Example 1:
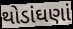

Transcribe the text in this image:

થોડાંઘણાં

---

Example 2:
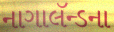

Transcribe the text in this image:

નાગાલૅન્ડના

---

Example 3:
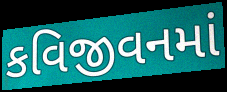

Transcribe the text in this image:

કવિજીવનમાં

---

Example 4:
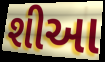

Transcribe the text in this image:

શીઆ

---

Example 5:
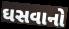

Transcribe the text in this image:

ઘસવાનો